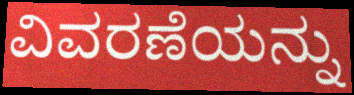
ವಿವರಣೆಯನ್ನು